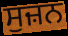
ਸੁਜ਼ਨ